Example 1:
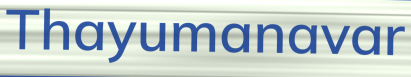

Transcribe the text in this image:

Thayumanavar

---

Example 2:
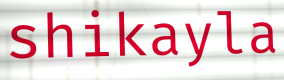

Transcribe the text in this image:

shikayla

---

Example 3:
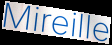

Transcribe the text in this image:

Mireille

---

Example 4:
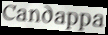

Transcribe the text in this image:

Candappa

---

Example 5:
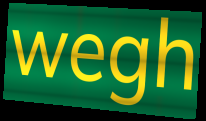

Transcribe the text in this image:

wegh